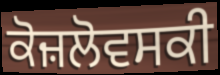
ਕੋਜ਼ਲੋਵਸਕੀ